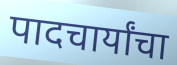
पादचार्यांचा